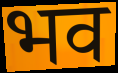
भव